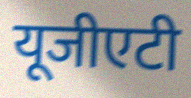
यूजीएटी